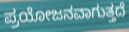
ಪ್ರಯೋಜನವಾಗುತ್ತದೆ